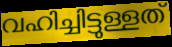
വഹിച്ചിട്ടുള്ളത്